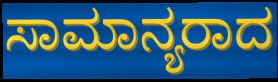
ಸಾಮಾನ್ಯರಾದ